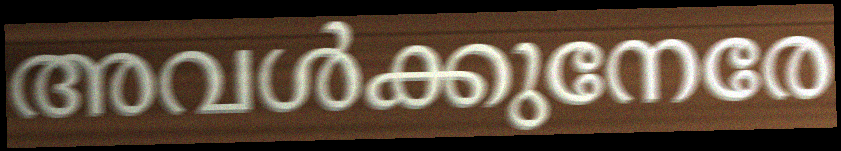
അവൾക്കുനേരേ